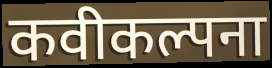
कवीकल्पना